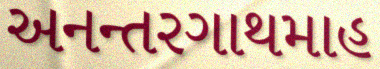
અનન્તરગાથમાહ